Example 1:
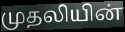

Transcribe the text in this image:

முதலியின்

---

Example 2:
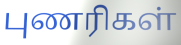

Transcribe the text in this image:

புணரிகள்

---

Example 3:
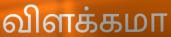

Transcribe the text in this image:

விளக்கமா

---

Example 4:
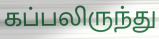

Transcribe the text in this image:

கப்பலிருந்து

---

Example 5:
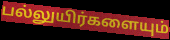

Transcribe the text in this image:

பல்லுயிர்களையும்